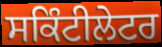
ਸਕਿੰਟੀਲੇਟਰ